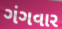
ગંગવાર